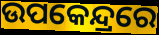
ଉପକେନ୍ଦ୍ରରେ